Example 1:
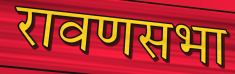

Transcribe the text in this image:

रावणसभा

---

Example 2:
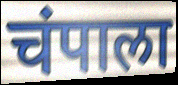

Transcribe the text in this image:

चंपाला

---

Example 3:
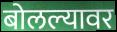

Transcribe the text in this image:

बोलल्यावर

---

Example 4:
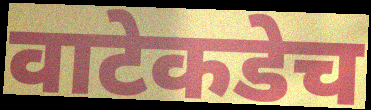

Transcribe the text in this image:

वाटेकडेच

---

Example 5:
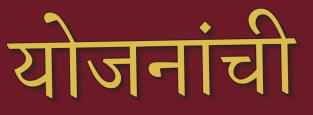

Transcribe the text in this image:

योजनांची